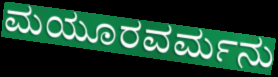
ಮಯೂರವರ್ಮನು